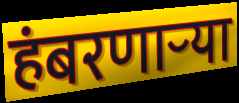
हंबरणाऱ्या